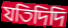
যতিদিদি